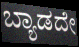
ಬ್ಯಾಡದೇ